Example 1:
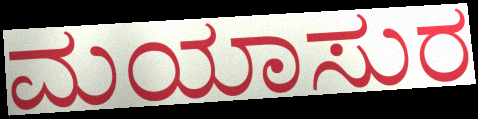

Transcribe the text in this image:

ಮಯಾಸುರ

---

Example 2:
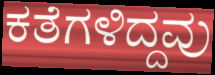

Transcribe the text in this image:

ಕತೆಗಳಿದ್ದವು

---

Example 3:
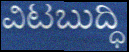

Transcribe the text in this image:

ವಿಟಬುದ್ಧಿ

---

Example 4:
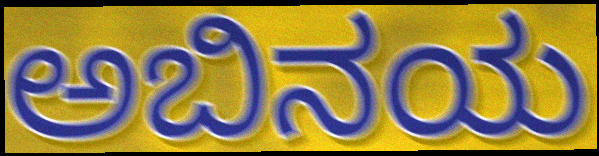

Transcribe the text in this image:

ಅಬಿನಯ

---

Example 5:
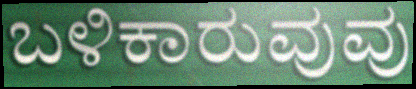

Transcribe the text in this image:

ಬಳಿಕಾರುವುವು